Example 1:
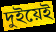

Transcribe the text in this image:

দুইয়েই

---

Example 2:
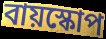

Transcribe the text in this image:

বায়স্কোপ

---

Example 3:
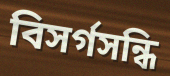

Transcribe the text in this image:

বিসর্গসন্ধি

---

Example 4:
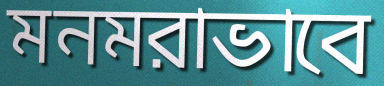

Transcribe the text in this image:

মনমরাভাবে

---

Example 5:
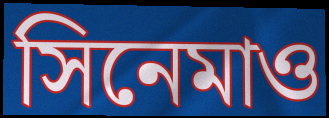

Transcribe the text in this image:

সিনেমাও